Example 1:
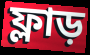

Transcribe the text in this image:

ফ্লাড়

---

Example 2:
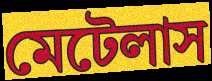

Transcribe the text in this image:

মেটেলাস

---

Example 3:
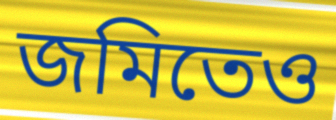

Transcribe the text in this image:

জমিতেও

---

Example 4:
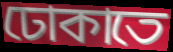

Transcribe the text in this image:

ঢোকাতে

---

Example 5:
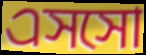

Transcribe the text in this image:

এসসো